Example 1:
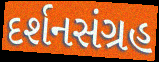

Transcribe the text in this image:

દર્શનસંગ્રહ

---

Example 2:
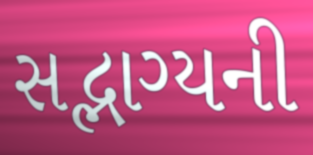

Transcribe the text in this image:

સદ્ભાગ્યની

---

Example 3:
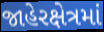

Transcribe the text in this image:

જાહેરક્ષેત્રમાં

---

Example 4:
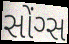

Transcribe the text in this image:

સોંગ્સ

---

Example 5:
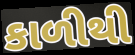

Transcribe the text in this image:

કાળીથી